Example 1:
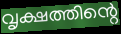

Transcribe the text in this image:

വൃക്ഷത്തിന്റെ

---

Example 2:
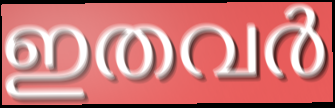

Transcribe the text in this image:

ഇതവർ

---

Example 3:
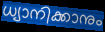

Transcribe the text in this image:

ധ്യാനിക്കാനും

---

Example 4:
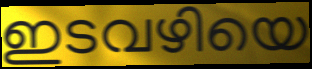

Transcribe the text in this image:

ഇടവഴിയെ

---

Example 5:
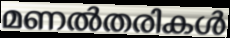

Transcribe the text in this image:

മണൽതരികൾ